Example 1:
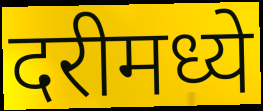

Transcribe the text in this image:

दरीमध्ये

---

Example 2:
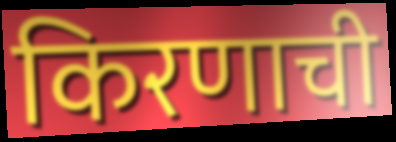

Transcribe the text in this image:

किरणाची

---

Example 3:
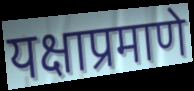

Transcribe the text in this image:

यक्षाप्रमाणे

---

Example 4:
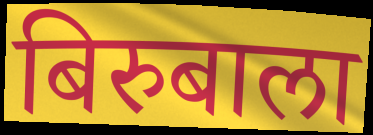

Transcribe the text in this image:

बिरुबाला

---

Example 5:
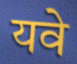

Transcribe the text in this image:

यवे